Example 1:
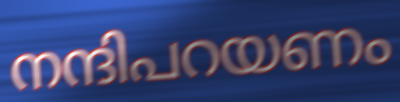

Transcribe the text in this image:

നന്ദിപറയണം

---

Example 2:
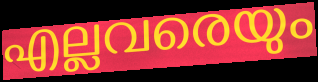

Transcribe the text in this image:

എല്ലവരെയും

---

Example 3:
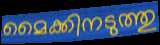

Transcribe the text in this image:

മൈക്കിനടുത്തു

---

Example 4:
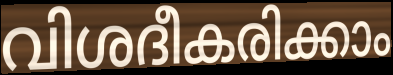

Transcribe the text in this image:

വിശദീകരിക്കാം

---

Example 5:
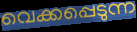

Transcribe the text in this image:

വെക്കപ്പെടുന്ന